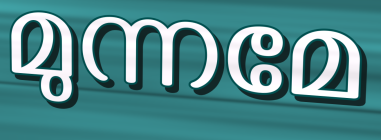
മുന്നമേ